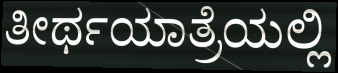
ತೀರ್ಥಯಾತ್ರೆಯಲ್ಲಿ